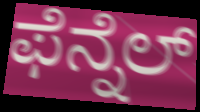
ಫೆನ್ನೆಲ್